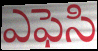
ఎఫెసి